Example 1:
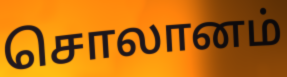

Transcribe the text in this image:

சொலானம்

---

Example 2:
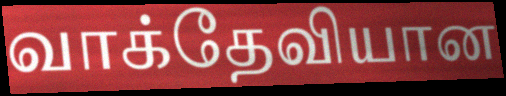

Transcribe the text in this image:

வாக்தேவியான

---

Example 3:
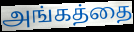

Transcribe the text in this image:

அங்கத்தை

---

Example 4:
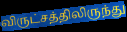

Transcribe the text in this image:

விருட்சத்திலிருந்து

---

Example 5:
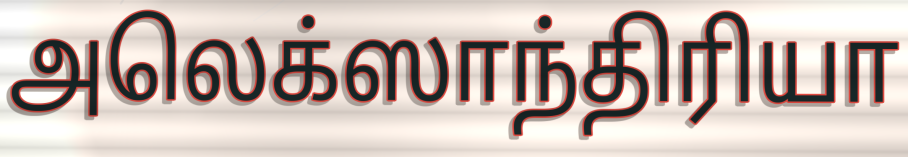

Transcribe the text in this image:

அலெக்ஸாந்திரியா